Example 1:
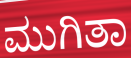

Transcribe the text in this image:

ಮುಗಿತಾ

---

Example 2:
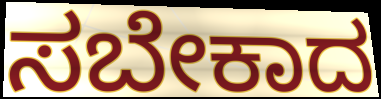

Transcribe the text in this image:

ಸಬೇಕಾದ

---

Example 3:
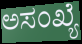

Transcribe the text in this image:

ಅಸಂಖ್ಯೆ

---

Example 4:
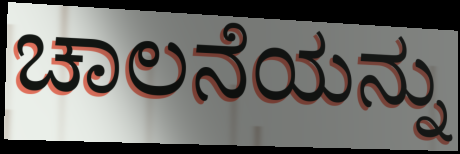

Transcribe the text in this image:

ಚಾಲನೆಯನ್ನು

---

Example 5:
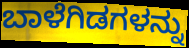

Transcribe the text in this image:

ಬಾಳೆಗಿಡಗಳನ್ನು